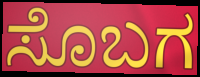
ಸೊಬಗ